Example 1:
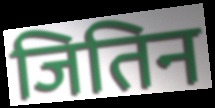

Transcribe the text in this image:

जितिन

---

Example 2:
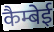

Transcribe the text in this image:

कैम्बेई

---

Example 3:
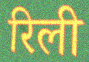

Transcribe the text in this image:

रिली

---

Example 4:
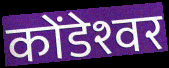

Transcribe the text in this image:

कोंडेश्वर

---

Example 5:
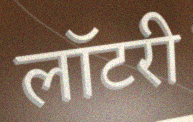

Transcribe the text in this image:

लॉटरी